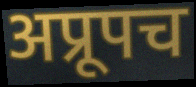
अप्रूपच